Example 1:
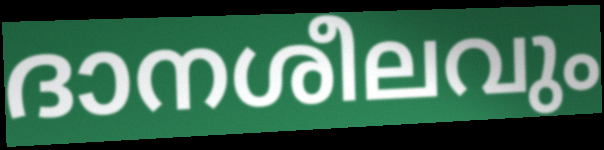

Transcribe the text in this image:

ദാനശീലവും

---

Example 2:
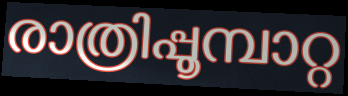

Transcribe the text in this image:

രാത്രിപ്പൂമ്പാറ്റ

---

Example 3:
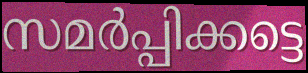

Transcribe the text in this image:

സമർപ്പിക്കട്ടെ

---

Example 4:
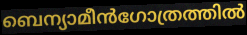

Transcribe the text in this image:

ബെന്യാമീൻഗോത്രത്തിൽ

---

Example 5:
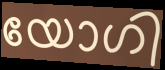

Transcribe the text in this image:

യോഗി